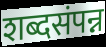
शब्दसंपन्न